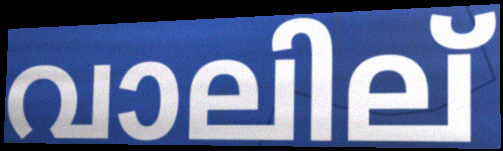
വാലില്